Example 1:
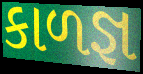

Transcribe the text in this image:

કાળજ્ઞ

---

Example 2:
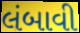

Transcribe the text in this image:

લંબાવી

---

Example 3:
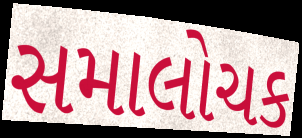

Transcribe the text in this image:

સમાલોચક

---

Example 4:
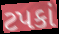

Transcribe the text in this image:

ટપકાં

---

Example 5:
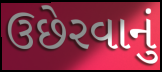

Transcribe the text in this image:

ઉછેરવાનું